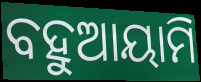
ବହୁଆୟାମି